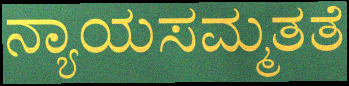
ನ್ಯಾಯಸಮ್ಮತತೆ